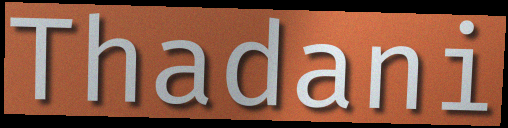
Thadani